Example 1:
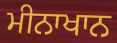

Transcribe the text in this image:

ਮੀਨਾਖਾਨ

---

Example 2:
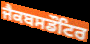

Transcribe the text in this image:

ਜੈਕਬਸਡੌਟਿਰ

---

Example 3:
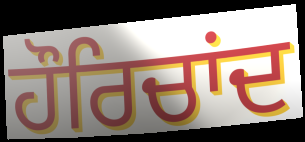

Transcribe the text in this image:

ਹੌਰਿਚਾਂਦ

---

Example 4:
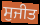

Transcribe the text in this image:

ਸੁਜੀਤ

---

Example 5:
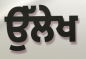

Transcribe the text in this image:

ਉੱਲੇਖ